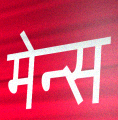
मेन्स